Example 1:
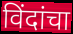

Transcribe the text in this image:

विंदांचा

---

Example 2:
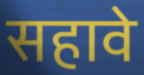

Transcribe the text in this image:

सहावे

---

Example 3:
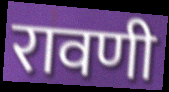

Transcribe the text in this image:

रावणी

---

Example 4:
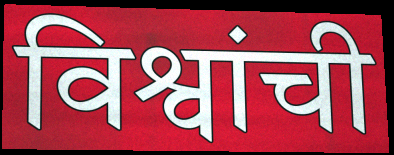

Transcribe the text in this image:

विश्वांची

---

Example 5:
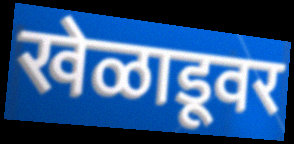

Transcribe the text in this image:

खेळाडूवर